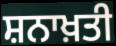
ਸ਼ਨਾਖ਼ਤੀ